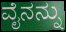
ವೈನನ್ನು